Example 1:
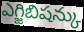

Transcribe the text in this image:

ఎగ్జిబిషన్కు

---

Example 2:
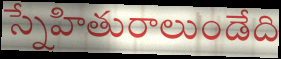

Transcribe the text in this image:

స్నేహితురాలుండేది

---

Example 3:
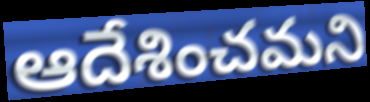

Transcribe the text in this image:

ఆదేశించమని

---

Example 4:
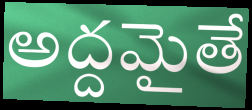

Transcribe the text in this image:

అద్దమైతే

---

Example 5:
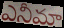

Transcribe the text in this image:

ఎనీమా